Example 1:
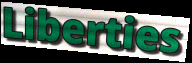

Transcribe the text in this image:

Liberties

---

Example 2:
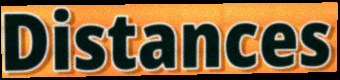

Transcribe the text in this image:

Distances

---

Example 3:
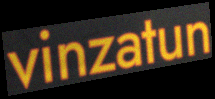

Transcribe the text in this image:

vinzatun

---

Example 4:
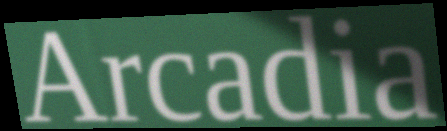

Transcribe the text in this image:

Arcadia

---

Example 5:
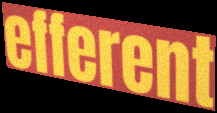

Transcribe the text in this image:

efferent